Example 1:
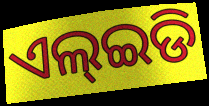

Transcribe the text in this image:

ଏଲ୍ଇଡି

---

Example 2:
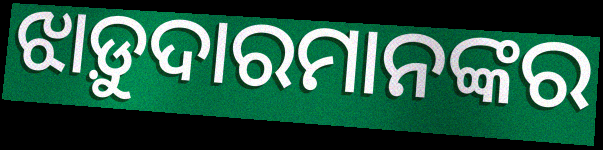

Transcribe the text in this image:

ଝାଡ଼ୁଦାରମାନଙ୍କର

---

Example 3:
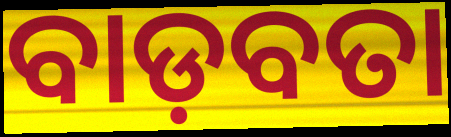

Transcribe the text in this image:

ବାଡ଼ବତା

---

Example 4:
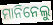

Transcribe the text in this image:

ମାନିନେଲୁ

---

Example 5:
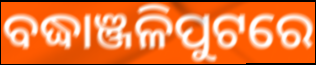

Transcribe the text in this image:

ବଦ୍ଧାଞ୍ଜଳିପୁଟରେ